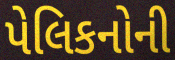
પેલિકનોની